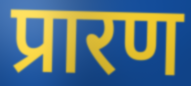
प्रारण